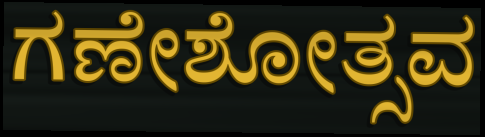
ಗಣೇಶೋತ್ಸವ